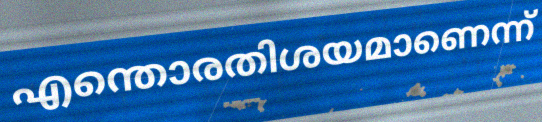
എന്തൊരതിശയമാണെന്ന്